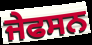
ਜੇਫਸਨ